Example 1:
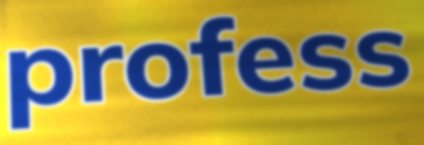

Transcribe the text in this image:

profess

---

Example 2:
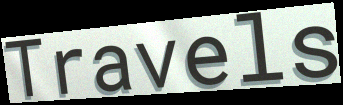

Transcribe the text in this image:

Travels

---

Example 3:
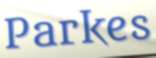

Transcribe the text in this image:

Parkes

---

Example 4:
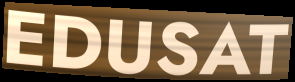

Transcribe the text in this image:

EDUSAT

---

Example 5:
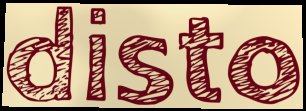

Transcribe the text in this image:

disto